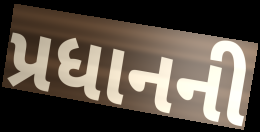
પ્રધાનની